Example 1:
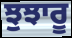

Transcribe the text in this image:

ਝੁਝਾਰੂ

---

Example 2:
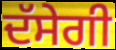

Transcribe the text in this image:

ਦੱਸੇਗੀ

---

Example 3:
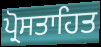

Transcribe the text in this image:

ਪ੍ਰੋਸਤਾਹਿਤ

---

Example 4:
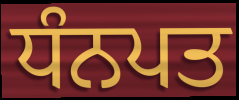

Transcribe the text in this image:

ਧੰਨਪਤ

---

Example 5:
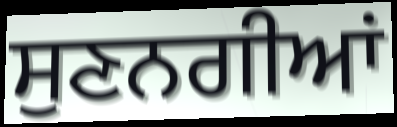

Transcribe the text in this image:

ਸੁਣਨਗੀਆਂ